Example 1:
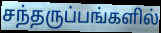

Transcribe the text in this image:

சந்தருப்பங்களில்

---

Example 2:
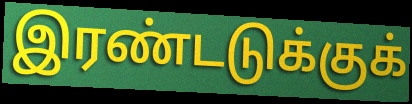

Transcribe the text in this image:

இரண்டடுக்குக்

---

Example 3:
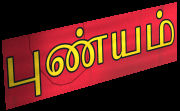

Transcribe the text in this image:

புண்யம்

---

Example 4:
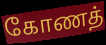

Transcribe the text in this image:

கோணத்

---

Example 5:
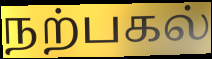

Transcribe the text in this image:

நற்பகல்